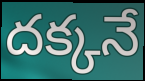
దక్కనే